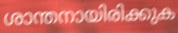
ശാന്തനായിരിക്കുക